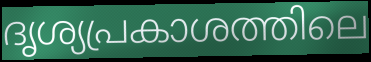
ദൃശ്യപ്രകാശത്തിലെ